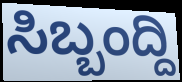
ಸಿಬ್ಬಂದ್ದಿ